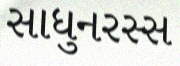
સાધુનરસ્સ